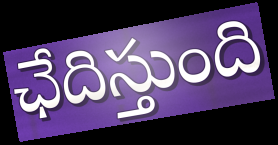
ఛేదిస్తుంది